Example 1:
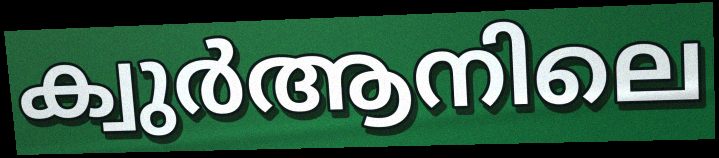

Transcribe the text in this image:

ക്വുർആനിലെ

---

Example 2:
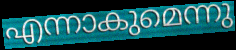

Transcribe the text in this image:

എന്നാകുമെന്നു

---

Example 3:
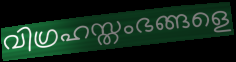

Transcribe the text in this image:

വിഗ്രഹസ്തംഭങ്ങളെ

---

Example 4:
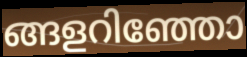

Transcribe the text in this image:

ങ്ങളറിഞ്ഞോ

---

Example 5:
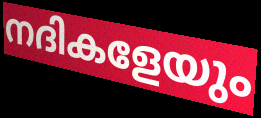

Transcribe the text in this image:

നദികളേയും